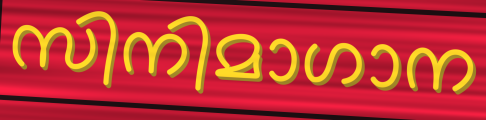
സിനിമാഗാന